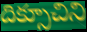
దిక్సూచిని